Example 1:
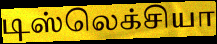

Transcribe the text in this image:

டிஸ்லெக்சியா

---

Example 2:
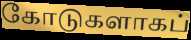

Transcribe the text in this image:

கோடுகளாகப்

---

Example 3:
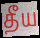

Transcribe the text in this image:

தீய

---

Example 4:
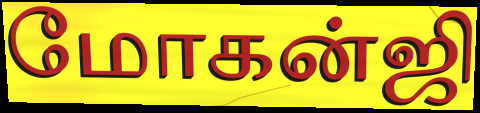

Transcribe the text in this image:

மோகன்ஜி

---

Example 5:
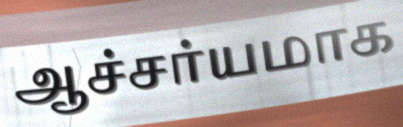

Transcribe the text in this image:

ஆச்சர்யமாக